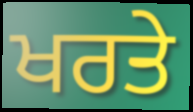
ਖਰਤੇ